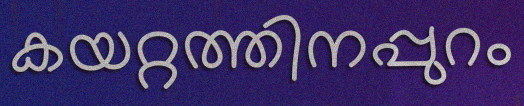
കയറ്റത്തിനപ്പുറം